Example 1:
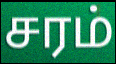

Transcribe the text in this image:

சரம்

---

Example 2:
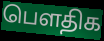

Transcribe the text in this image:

பெளதிக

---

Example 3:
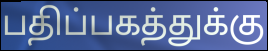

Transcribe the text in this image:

பதிப்பகத்துக்கு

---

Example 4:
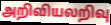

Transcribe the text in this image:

அறிவியலறிவு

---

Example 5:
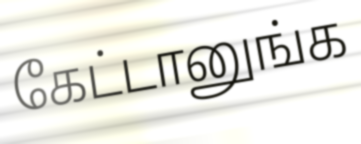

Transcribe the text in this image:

கேட்டானுங்க